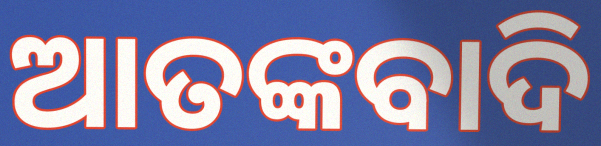
ଆତଙ୍କବାଦି